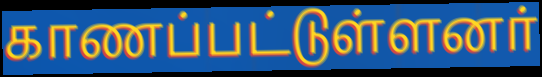
காணப்பட்டுள்ளனர்